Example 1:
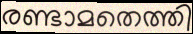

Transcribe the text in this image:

രണ്ടാമതെത്തി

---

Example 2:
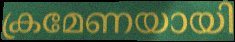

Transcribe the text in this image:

ക്രമേണയായി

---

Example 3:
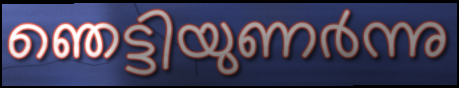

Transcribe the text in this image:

ഞെട്ടിയുണർന്നു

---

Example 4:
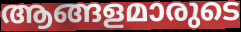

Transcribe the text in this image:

ആങ്ങളമാരുടെ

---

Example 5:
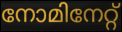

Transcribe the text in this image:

നോമിനേറ്റ്